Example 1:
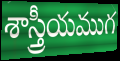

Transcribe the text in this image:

శాస్త్రీయముగ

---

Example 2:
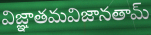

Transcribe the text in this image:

విజ్ఞాతమవిజానతామ్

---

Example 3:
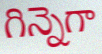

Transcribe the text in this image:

గిన్నెగా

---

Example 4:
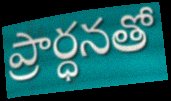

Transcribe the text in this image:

ప్రార్ధనతో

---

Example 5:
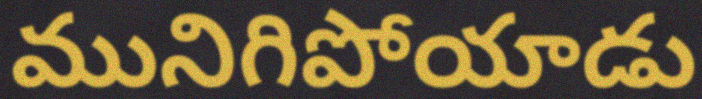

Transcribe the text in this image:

మునిగిపోయాడు